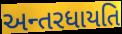
અન્તરધાયતિ